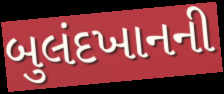
બુલંદખાનની